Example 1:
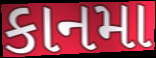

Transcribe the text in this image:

કાનમા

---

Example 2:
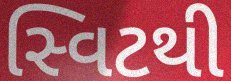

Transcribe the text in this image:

સ્વિટથી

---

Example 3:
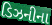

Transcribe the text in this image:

ડિઝનીના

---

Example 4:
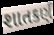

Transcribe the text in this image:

શાતકર્ણ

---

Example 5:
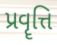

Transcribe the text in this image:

પ્રવૄત્તિ